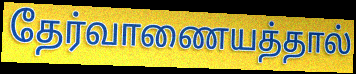
தேர்வாணையத்தால்